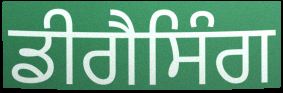
ਡੀਗੈਸਿੰਗ